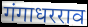
गंगाधरराव